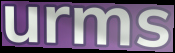
urms